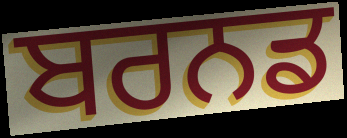
ਬਰਨਡ